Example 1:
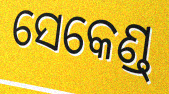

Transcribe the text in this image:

ସେକେଣ୍ଡ୍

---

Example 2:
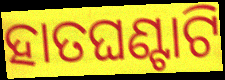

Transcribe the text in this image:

ହାତଘଣ୍ଟାଟି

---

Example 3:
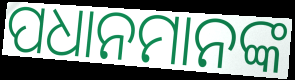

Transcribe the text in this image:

ପଧାନମାନଙ୍କ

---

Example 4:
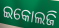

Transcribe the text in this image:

ଇକୋଲଜି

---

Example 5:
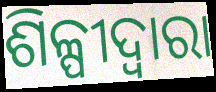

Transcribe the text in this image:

ଶିଳ୍ପୀଦ୍ୱାରା